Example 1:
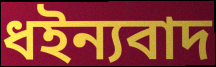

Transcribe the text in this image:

ধইন্যবাদ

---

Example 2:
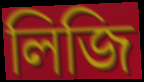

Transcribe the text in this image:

লিজি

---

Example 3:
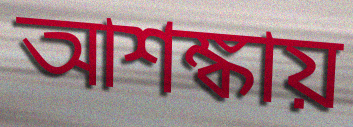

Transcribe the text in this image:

আশঙ্কায়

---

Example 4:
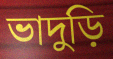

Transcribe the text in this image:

ভাদুড়ি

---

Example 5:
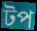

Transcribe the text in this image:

টপ